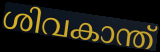
ശിവകാന്ത്